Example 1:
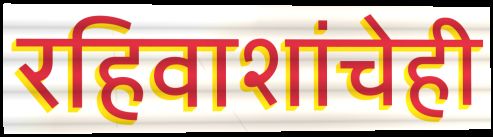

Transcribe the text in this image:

रहिवाशांचेही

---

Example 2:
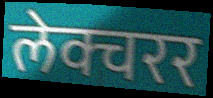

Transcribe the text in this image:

लेक्चरर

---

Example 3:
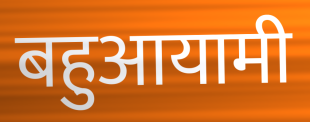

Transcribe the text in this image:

बहुआयामी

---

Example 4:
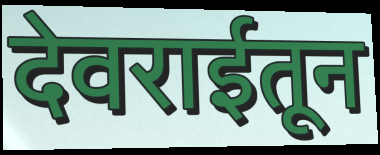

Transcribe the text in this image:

देवराईतून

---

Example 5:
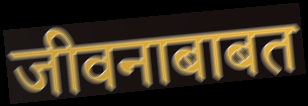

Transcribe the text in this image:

जीवनाबाबत